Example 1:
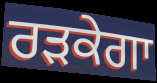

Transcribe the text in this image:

ਰੜਕੇਗਾ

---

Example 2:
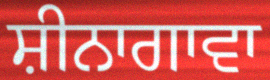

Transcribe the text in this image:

ਸ਼ੀਨਾਗਾਵਾ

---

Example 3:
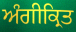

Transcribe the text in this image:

ਅੰਗੀਕ੍ਰਿਤ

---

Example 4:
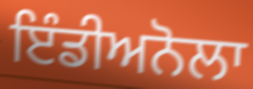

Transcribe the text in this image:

ਇੰਡੀਅਨੋਲਾ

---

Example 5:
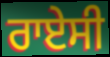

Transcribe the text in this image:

ਰਾਏਸੀ